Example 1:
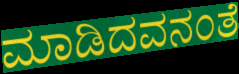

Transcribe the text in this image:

ಮಾಡಿದವನಂತೆ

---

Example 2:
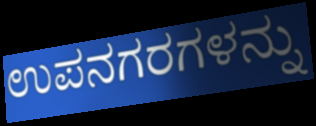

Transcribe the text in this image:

ಉಪನಗರಗಳನ್ನು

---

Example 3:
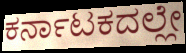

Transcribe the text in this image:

ಕರ್ನಾಟಕದಲ್ಲೇ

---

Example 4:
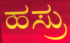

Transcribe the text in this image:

ಹಸ್ರು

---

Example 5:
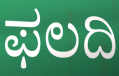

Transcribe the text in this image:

ಫಲದಿ